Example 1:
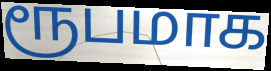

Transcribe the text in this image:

ரூபமாக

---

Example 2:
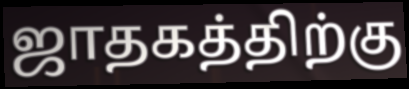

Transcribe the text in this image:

ஜாதகத்திற்கு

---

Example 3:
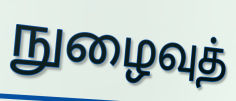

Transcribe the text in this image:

நுழைவுத்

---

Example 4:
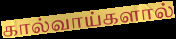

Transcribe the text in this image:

கால்வாய்களால்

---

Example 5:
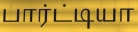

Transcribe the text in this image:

பார்ட்டியா